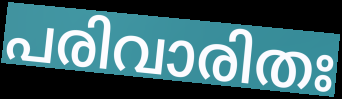
പരിവാരിതഃ